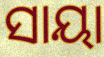
ସାୟା